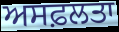
ਅਸਫ਼ਲਤਾ